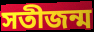
সতীজন্ম